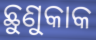
ଛୁଣୁକାକ